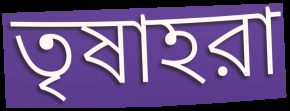
তৃষাহরা